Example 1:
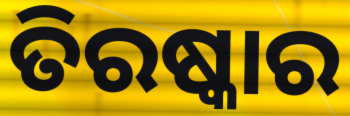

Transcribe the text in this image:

ତିରଷ୍କାର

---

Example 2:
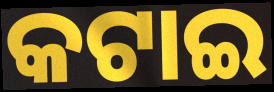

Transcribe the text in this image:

କଟାଇ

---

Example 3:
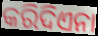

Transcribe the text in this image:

କରିଦିଏନା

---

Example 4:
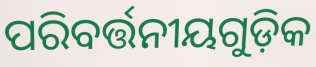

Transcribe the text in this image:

ପରିବର୍ତ୍ତନୀୟଗୁଡ଼ିକ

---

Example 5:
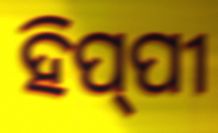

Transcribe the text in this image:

ହିପ୍‍ପୀ